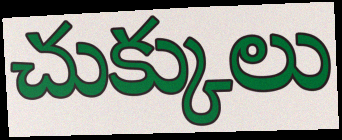
చుక్కులు